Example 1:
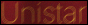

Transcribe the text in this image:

Unistar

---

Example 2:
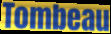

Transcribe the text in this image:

Tombeau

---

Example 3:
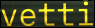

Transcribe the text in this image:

vetti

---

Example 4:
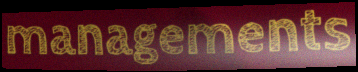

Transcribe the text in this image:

managements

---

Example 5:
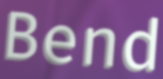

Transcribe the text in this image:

Bend